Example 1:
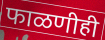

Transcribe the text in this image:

फाळणीही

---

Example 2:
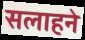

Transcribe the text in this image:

सलाहने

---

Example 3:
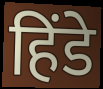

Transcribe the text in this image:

हिंडे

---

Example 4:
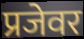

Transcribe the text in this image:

प्रजेवर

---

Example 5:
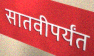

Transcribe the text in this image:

सातवीपर्यंत